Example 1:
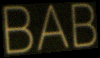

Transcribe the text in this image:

BAB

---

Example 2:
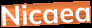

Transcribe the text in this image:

Nicaea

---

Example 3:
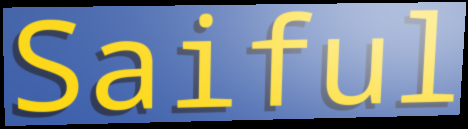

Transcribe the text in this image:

Saiful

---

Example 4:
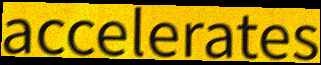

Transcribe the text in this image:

accelerates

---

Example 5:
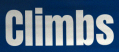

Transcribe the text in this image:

Climbs